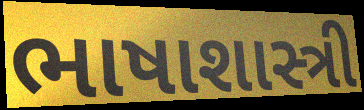
ભાષાશાસ્ત્રી